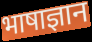
भाषाज्ञान